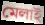
মেলাই